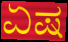
ಏಷ